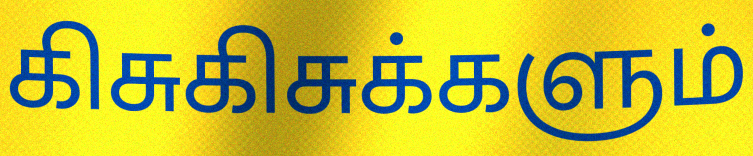
கிசுகிசுக்களும்